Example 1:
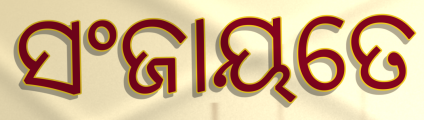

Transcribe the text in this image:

ସଂଜାୟତେ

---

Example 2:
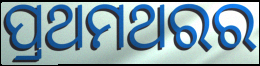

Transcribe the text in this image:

ପ୍ରଥମଥରର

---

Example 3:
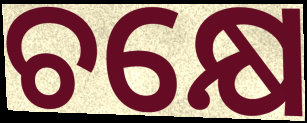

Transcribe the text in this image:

ଚକ୍ଷେ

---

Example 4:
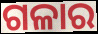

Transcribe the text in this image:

ଗଳାର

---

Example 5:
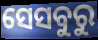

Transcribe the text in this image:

ସେସବୁରୁ